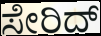
ಸೇರಿದ್